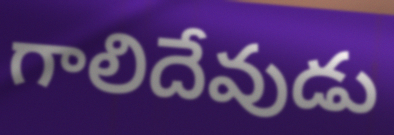
గాలిదేవుడు